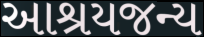
આશ્રયજન્ય